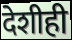
देशीही